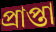
প্রাপ্তা